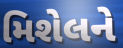
મિશેલને